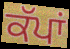
ਕੱਪਾਂ